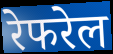
रेफरेल